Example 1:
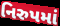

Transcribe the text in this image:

નિરુપમાં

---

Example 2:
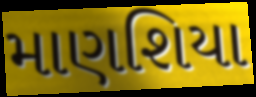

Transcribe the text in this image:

માણશિયા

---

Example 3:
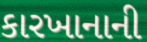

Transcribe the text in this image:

કારખાનાની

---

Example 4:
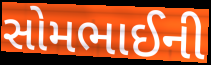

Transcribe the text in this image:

સોમભાઈની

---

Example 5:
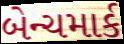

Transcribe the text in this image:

બેન્ચમાર્ક